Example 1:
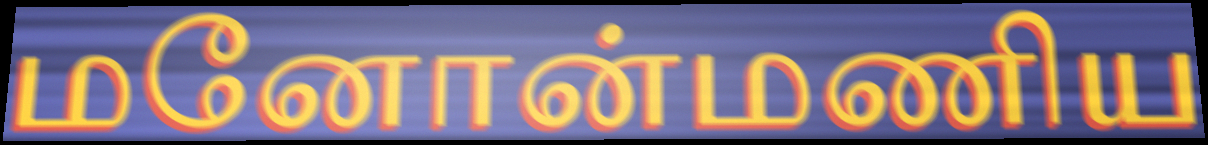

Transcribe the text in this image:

மனோன்மணிய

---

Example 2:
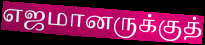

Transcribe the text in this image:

எஜமானருக்குத்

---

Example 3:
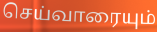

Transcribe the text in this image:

செய்வாரையும்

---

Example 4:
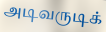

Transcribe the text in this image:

அடிவருடிக்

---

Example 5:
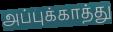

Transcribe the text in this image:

அப்புக்காத்து